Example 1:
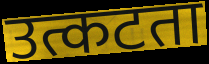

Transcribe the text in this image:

उत्कटता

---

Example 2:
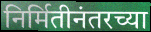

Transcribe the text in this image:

निर्मितीनंतरच्या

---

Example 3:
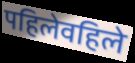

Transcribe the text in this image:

पहिलेवहिले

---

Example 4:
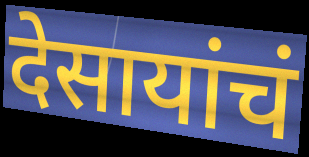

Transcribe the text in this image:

देसायांचं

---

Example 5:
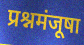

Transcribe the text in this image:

प्रश्नमंजूषा